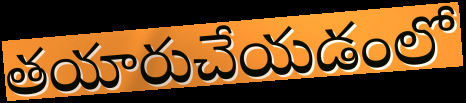
తయారుచేయడంలో